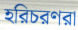
হরিচরণরা